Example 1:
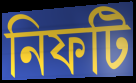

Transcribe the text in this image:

নিফটি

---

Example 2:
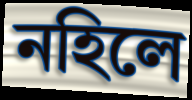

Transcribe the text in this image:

নহিলে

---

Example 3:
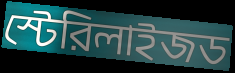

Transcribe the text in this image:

স্টেরিলাইজড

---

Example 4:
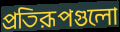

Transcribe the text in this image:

প্রতিরূপগুলো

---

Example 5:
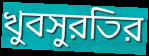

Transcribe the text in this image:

খুবসুরতির